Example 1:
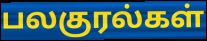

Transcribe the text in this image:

பலகுரல்கள்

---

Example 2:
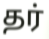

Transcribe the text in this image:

தர்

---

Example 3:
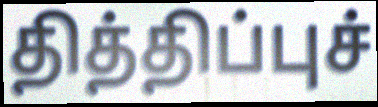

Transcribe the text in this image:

தித்திப்புச்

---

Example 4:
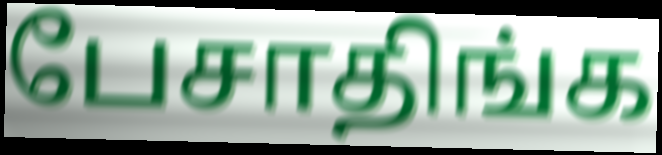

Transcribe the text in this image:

பேசாதிங்க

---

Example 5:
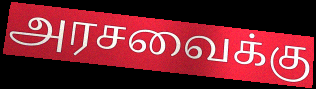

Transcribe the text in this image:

அரசவைக்கு